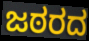
ಜಠರದ